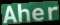
Aher